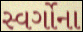
સ્વર્ગોના